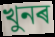
খুনৰ